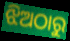
ଝିଅଠାରୁ